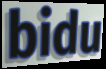
bidu